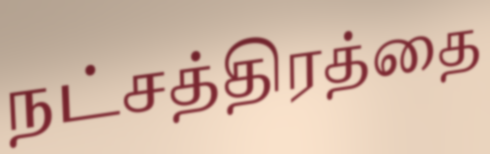
நட்சத்திரத்தை